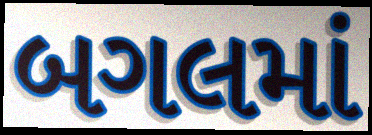
બગલમાં